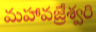
మహావజ్రేశ్వరి